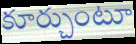
కూర్చుంటూ